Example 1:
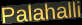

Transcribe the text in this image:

Palahalli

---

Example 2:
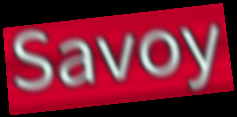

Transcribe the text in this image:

Savoy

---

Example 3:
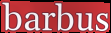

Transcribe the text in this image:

barbus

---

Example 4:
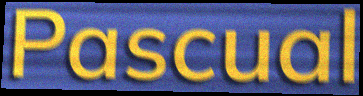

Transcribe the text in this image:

Pascual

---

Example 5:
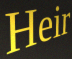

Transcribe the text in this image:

Heir